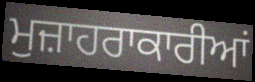
ਮੁਜ਼ਾਹਰਾਕਾਰੀਆਂ